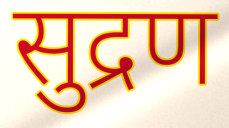
सुद्रण